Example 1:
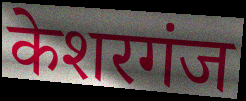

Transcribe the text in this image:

केशरगंज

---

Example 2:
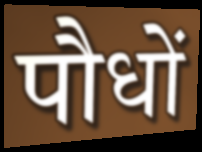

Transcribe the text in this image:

पौधों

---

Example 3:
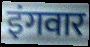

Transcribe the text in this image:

इंगवार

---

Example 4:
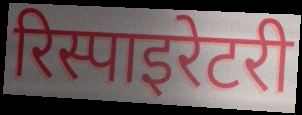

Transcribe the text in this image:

रिस्पाइरेटरी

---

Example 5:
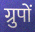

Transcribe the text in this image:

ग्रुपों